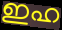
ഇഹ